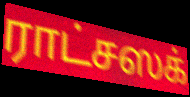
ராட்சஸக்